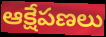
ఆక్షేపణలు